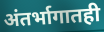
अंतर्भागातही